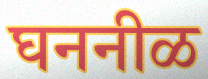
घननीळ